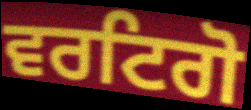
ਵਰਟਿਗੋ